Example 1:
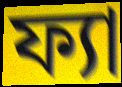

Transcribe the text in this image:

ফ্যা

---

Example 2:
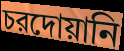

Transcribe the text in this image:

চরদোয়ানি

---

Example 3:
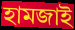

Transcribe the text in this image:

হামজাই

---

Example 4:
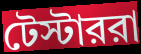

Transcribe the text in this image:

টেস্টাররা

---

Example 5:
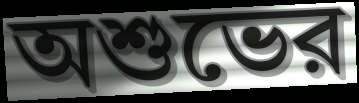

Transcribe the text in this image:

অশুভের